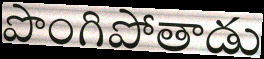
పొంగిపోతాడు